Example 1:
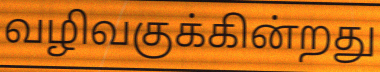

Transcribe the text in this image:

வழிவகுக்கின்றது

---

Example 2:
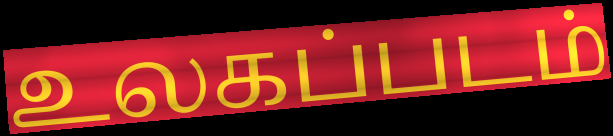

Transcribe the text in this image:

உலகப்படம்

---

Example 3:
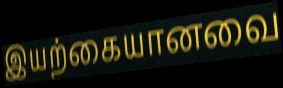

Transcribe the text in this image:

இயற்கையானவை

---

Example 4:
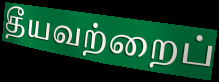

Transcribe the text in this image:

தீயவற்றைப்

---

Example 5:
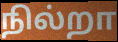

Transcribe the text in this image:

நில்றா